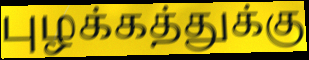
புழக்கத்துக்கு